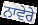
ਨਾਵੇਰੇ